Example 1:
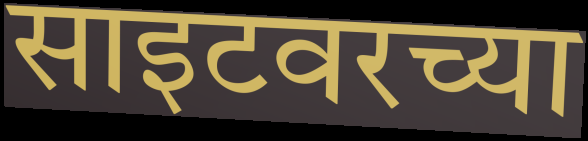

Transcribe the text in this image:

साइटवरच्या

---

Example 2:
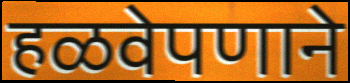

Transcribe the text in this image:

हळवेपणाने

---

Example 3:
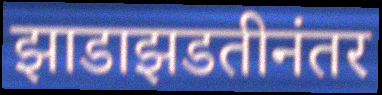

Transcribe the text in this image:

झाडाझडतीनंतर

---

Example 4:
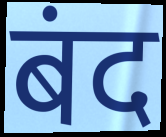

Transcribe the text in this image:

बंद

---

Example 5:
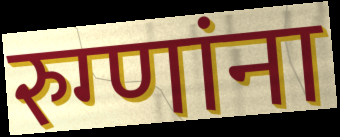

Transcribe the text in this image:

रुग्णांना